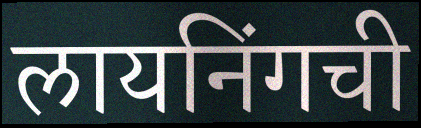
लायनिंगची